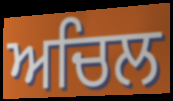
ਅਚਿਲ